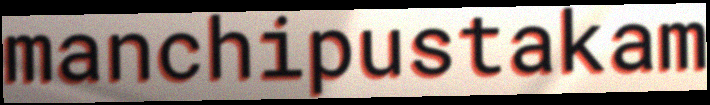
manchipustakam